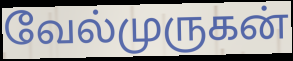
வேல்முருகன்